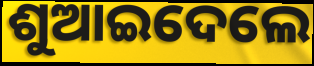
ଶୁଆଇଦେଲେ